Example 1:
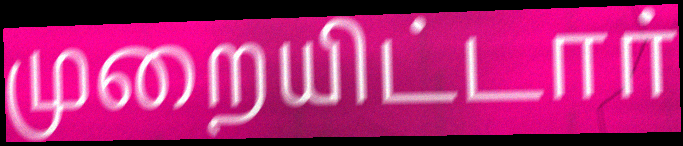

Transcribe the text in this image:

முறையிட்டார்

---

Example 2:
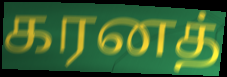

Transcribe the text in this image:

கரனத்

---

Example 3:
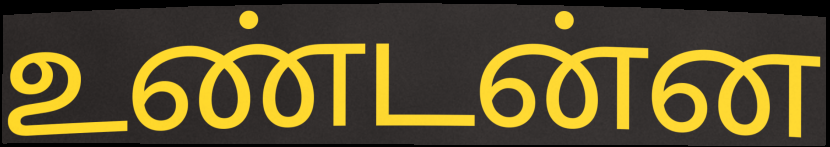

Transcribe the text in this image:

உண்டன்ன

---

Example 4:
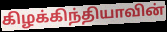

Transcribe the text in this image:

கிழக்கிந்தியாவின்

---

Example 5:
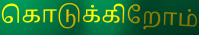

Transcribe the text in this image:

கொடுக்கிறோம்